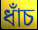
ধাঁচ